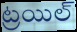
ట్రయిల్